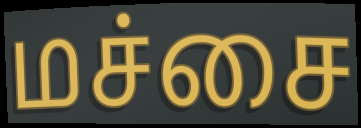
மச்சை